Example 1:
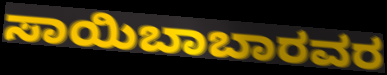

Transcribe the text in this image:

ಸಾಯಿಬಾಬಾರವರ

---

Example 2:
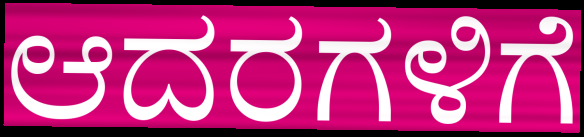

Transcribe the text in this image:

ಆದರಗಳಿಗೆ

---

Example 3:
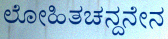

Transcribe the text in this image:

ಲೋಹಿತಚನ್ದನೇನ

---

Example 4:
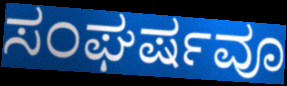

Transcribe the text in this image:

ಸಂಘರ್ಷವೂ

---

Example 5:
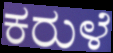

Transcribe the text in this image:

ಕರುಳೆ